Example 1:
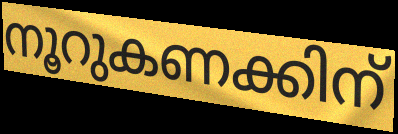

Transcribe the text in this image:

നൂറുകണക്കിന്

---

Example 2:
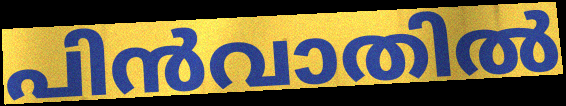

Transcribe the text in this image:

പിൻവാതിൽ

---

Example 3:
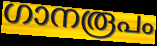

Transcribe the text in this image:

ഗാനരൂപം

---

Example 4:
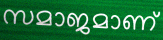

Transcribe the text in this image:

സമാജമാണ്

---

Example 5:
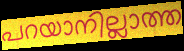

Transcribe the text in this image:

പറയാനില്ലാത്ത